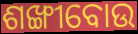
ଶଙ୍ଖୀବୋଉ